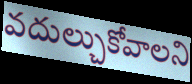
వదుల్చుకోవాలని